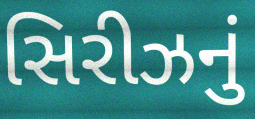
સિરીઝનું